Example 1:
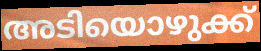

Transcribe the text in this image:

അടിയൊഴുക്ക്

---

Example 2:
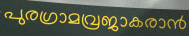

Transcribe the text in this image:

പുരഗ്രാമവ്രജാകരാൻ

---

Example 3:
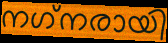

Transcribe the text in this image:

നഗ്‌നരായി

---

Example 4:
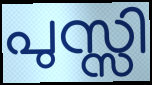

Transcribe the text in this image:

പുസ്സി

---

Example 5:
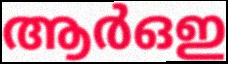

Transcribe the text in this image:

ആർഒഇ